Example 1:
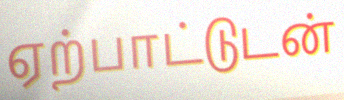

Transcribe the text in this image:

ஏற்பாட்டுடன்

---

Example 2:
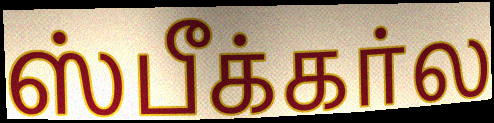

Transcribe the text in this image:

ஸ்பீக்கர்ல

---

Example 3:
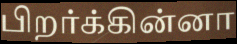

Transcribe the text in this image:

பிறர்க்கின்னா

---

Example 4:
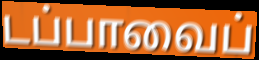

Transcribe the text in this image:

டப்பாவைப்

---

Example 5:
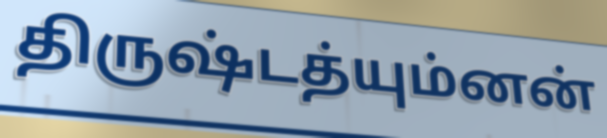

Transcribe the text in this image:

திருஷ்டத்யும்னன்